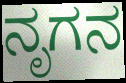
ನೃಗನ